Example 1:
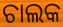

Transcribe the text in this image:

ଚାଲକ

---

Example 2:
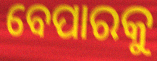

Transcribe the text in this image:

ବେପାରକୁ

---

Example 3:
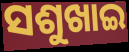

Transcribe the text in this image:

ସଶୁଖାଇ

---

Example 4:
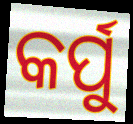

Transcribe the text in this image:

କର୍ପୁ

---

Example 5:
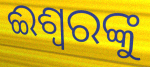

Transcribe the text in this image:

ଈଶ୍ଵରଙ୍କୁ